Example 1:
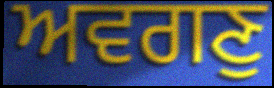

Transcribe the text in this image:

ਅਵਗਣੁ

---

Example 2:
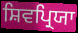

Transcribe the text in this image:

ਸ਼ਿਵਪ੍ਰਿਯਾ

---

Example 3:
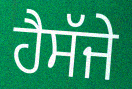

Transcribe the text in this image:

ਹੈਸੱਜੇ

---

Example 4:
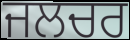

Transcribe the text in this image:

ਜਲਚਰ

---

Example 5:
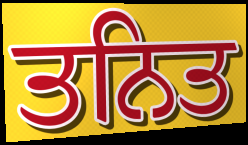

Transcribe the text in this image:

ਤਨਿਤ